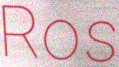
Ros